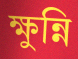
ক্ষুন্নি